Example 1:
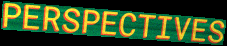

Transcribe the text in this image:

PERSPECTIVES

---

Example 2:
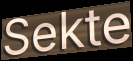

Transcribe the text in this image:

Sekte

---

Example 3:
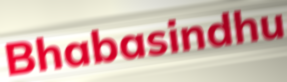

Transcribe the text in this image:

Bhabasindhu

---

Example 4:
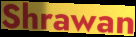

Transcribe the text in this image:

Shrawan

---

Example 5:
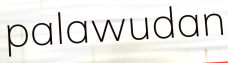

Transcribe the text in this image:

palawudan